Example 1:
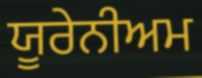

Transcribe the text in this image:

ਯੂਰੇਨੀਅਮ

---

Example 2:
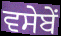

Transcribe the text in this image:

ਵਸੇਬੇਂ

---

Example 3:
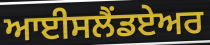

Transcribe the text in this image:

ਆਈਸਲੈਂਡਏਅਰ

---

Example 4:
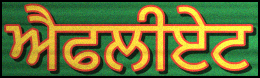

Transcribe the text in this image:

ਐਫਲੀਏਟ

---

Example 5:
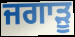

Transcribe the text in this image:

ਜਗਾੜੂ